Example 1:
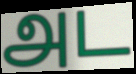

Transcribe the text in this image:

அட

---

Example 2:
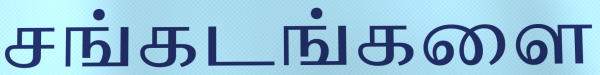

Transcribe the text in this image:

சங்கடங்களை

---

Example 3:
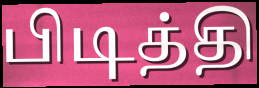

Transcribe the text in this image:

பிடித்தி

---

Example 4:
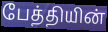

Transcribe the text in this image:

பேத்தியின்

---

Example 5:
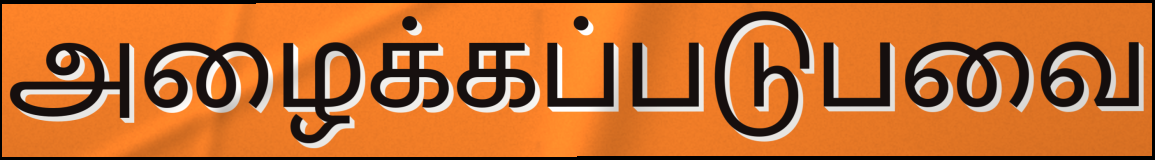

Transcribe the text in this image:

அழைக்கப்படுபவை